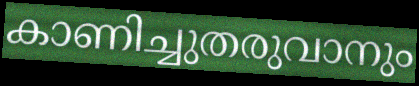
കാണിച്ചുതരുവാനും